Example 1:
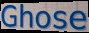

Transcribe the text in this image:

Ghose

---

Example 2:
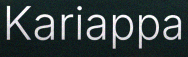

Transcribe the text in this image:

Kariappa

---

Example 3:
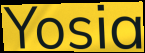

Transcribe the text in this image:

Yosia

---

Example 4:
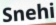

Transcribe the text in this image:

Snehi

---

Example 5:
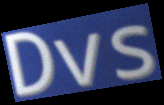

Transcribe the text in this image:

Dvs